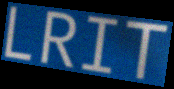
LRIT